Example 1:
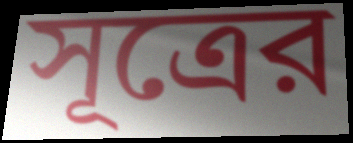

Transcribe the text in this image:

সূত্রের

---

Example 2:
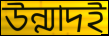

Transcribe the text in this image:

উন্মাদই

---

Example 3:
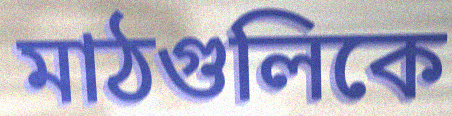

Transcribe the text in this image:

মাঠগুলিকে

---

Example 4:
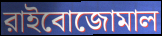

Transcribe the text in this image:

রাইবোজোমাল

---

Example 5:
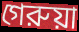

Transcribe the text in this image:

গেরুয়া